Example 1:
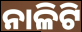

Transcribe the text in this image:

ନାଳିଟି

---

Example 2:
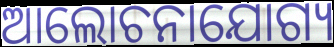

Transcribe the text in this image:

ଆଲୋଚନାଯୋଗ୍ୟ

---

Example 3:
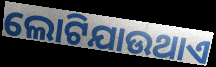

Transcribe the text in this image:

ଲୋଟିଯାଉଥାଏ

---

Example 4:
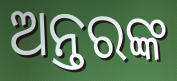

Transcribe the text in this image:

ଅନ୍ତରଙ୍କ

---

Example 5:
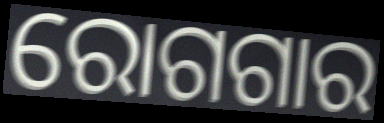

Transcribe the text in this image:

ରୋଗଗାର